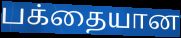
பக்தையான